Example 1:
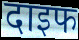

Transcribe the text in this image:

दाइफ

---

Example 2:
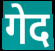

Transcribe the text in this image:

गेद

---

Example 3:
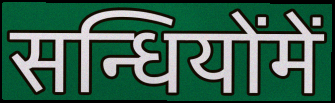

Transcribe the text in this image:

सन्धियोंमें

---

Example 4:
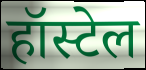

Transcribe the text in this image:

हॉस्टेल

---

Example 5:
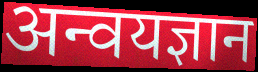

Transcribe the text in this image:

अन्वयज्ञान